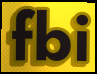
fbi